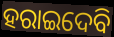
ହରାଇଦେବି